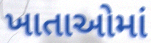
ખાતાઓમાં